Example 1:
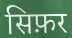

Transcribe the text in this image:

सिफ़र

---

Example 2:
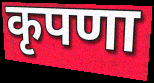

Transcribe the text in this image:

कृपणा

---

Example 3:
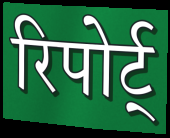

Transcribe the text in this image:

रिपोर्ट्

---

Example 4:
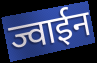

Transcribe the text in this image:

ज्वाईन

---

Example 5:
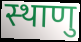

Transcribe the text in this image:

स्थाणु